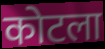
कोटला